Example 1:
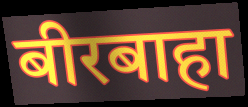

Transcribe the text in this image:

बीरबाहा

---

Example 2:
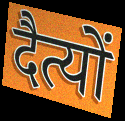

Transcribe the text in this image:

दैत्यों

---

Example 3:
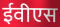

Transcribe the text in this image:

ईवीएस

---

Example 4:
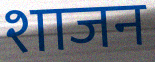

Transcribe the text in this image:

शाजन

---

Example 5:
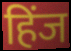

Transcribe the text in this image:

हिंज